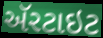
ઍરટાઇટ